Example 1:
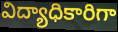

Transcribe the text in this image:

విద్యాధికారిగా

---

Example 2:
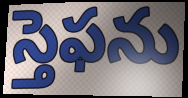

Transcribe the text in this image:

స్తెఫను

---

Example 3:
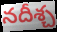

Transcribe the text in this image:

నదీశ్చ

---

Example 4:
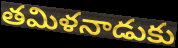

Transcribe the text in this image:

తమిళనాడుకు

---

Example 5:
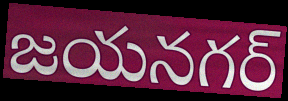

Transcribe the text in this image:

జయనగర్